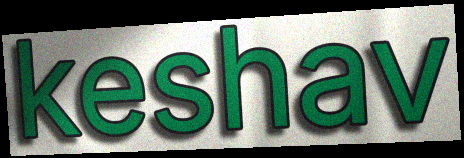
keshav